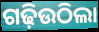
ଗଢ଼ିଉଠିଲା